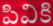
పివికి